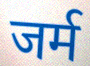
जर्म